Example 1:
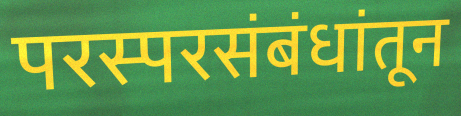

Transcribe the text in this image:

परस्परसंबंधांतून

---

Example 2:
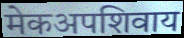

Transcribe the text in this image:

मेकअपशिवाय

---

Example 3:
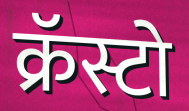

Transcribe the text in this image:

क्रॅस्टो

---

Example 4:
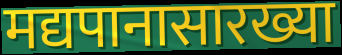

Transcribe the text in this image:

मद्यपानासारख्या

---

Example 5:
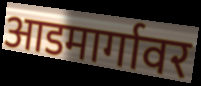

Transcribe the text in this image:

आडमार्गावर